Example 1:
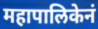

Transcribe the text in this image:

महापालिकेनं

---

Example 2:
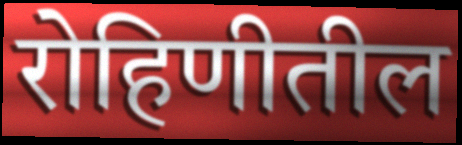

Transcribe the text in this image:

रोहिणीतील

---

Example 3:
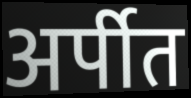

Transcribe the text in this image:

अर्पीत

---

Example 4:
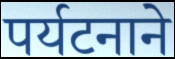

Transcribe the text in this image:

पर्यटनाने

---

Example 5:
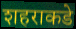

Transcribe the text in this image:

शहराकडे